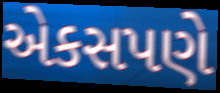
એકસપણે